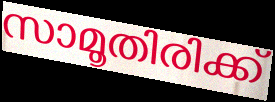
സാമൂതിരിക്ക്